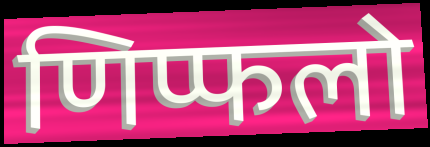
णिप्फलो